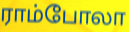
ராம்போலா